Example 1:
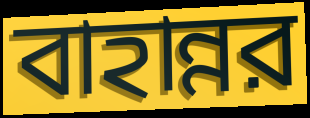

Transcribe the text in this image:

বাহান্নর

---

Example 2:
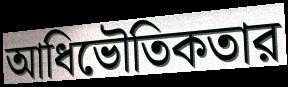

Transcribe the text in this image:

আধিভৌতিকতার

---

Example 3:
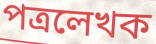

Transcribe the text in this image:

পত্রলেখক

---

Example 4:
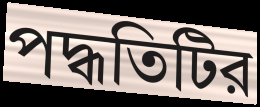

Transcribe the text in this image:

পদ্ধতিটির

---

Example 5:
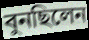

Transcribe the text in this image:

বুনছিলেন